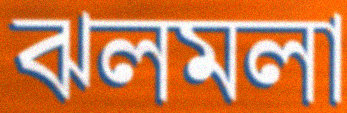
ঝলমলা